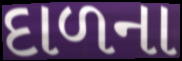
દાળના